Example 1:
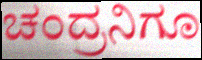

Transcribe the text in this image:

ಚಂದ್ರನಿಗೂ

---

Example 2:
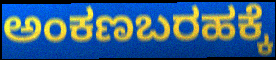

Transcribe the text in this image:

ಅಂಕಣಬರಹಕ್ಕೆ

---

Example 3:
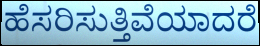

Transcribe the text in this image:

ಹೆಸರಿಸುತ್ತಿವೆಯಾದರೆ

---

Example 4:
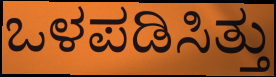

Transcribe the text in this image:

ಒಳಪಡಿಸಿತ್ತು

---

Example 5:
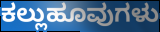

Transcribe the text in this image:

ಕಲ್ಲುಹೂವುಗಳು